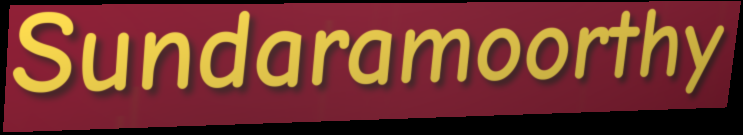
Sundaramoorthy